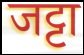
जट्टा